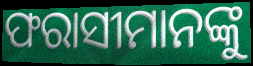
ଫରାସୀମାନଙ୍କୁ